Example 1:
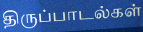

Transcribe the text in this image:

திருப்பாடல்கள்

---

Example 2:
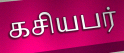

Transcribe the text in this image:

கசியபர்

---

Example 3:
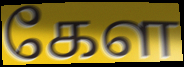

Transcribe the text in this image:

கேள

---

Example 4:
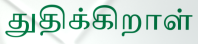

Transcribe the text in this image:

துதிக்கிறாள்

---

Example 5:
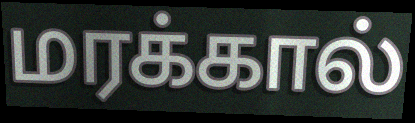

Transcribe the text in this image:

மரக்கால்